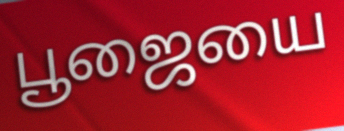
பூஜையை